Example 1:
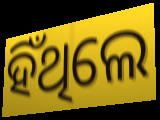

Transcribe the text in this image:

ହିଁଥିଲେ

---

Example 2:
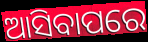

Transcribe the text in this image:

ଆସିବାପରେ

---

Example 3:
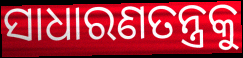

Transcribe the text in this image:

ସାଧାରଣତନ୍ତ୍ରକୁ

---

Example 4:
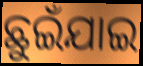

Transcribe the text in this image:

ଛୁଇଁଯାଇ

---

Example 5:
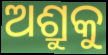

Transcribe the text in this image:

ଅଶ୍ରୁକୁ